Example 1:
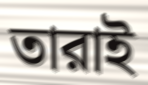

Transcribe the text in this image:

তারাই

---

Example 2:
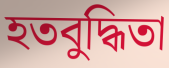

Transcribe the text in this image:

হতবুদ্ধিতা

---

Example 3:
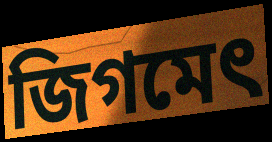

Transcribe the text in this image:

জিগমেৎ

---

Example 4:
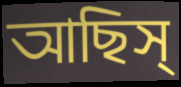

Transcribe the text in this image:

আছিস্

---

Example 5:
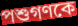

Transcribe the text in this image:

পশুগণকে